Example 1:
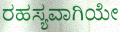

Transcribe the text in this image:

ರಹಸ್ಯವಾಗಿಯೇ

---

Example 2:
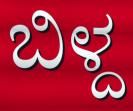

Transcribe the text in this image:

ಬಿಳ್ದ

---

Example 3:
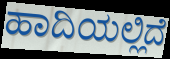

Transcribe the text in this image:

ಹಾದಿಯಲ್ಲಿದೆ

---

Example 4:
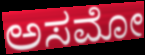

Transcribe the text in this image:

ಅಸಮೋ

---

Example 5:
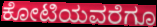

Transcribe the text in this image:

ಕೋಟಿಯವರೆಗೂ